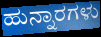
ಹುನ್ನಾರಗಳು